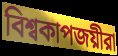
বিশ্বকাপজয়ীরা